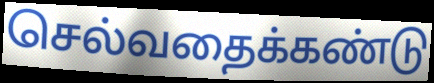
செல்வதைக்கண்டு